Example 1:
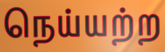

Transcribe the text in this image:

நெய்யற்ற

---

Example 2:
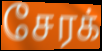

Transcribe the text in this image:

சேரக்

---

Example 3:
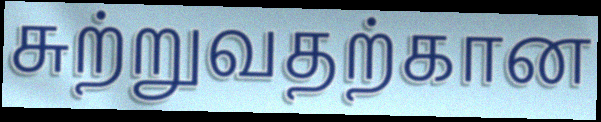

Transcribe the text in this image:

சுற்றுவதற்கான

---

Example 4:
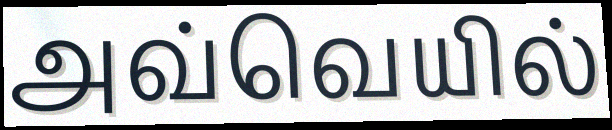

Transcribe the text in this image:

அவ்வெயில்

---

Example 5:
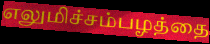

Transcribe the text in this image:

எலுமிச்சம்பழத்தை